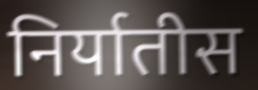
निर्यातीस